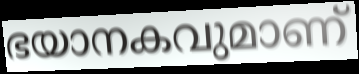
ഭയാനകവുമാണ്